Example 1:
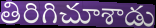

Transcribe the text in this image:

తిరిగిచూశాడు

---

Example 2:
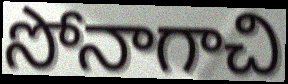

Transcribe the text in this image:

సోనాగాచి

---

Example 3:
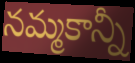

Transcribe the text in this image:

నమ్మకాన్నీ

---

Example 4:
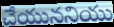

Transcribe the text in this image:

చేయుననియు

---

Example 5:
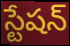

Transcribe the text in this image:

స్టేషన్